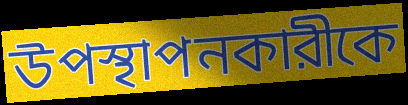
উপস্থাপনকারীকে